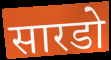
सारडो